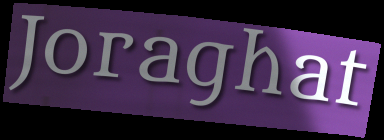
Joraghat